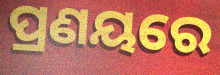
ପ୍ରଣୟରେ